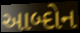
આબ્દોન